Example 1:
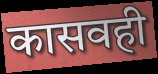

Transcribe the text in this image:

कासवही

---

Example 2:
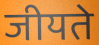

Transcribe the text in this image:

जीयते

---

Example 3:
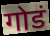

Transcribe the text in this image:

गोडं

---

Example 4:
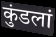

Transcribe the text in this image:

कुंडलां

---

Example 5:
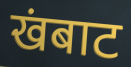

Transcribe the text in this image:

खंबाट